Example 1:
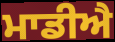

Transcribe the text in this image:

ਮਾਡੀਐ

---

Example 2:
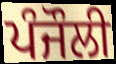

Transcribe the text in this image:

ਪੰਜੌਲੀ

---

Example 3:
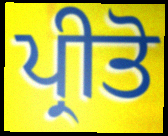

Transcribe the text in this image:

ਪ੍ਰੀਤੋ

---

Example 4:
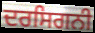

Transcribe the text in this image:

ਦਰਸਿਗਨੀ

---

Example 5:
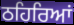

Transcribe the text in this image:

ਠਹਿਰਿਆਂ